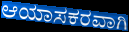
ಆಯಾಸಕರವಾಗಿ